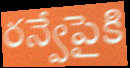
రన్వేపైకి